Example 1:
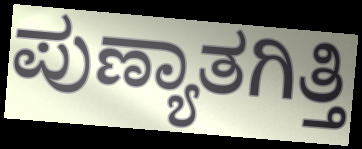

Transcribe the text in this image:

ಪುಣ್ಯಾತಗಿತ್ತಿ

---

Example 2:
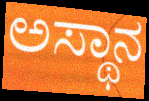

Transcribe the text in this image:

ಅಸ್ಥಾನ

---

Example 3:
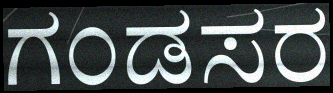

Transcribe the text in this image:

ಗಂಡಸರ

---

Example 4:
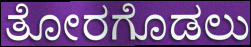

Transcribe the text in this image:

ತೋರಗೊಡಲು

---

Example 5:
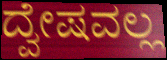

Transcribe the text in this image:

ದ್ವೇಷವಲ್ಲ